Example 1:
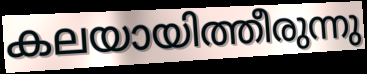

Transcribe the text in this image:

കലയായിത്തീരുന്നു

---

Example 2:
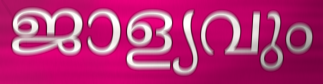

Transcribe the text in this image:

ജാള്യവും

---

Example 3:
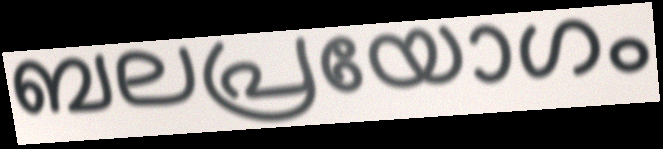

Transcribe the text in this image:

ബലപ്രയോഗം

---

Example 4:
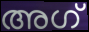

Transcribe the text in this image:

അഗ്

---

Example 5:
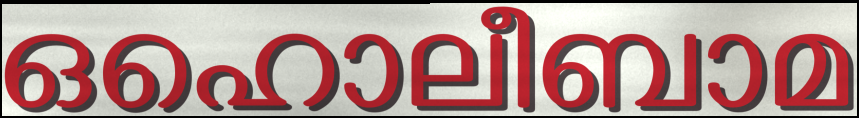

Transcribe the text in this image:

ഒഹൊലീബാമ